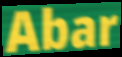
Abar